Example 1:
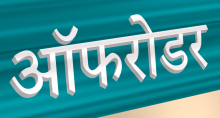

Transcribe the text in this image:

ऑफरोडर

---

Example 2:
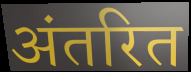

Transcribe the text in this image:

अंतरित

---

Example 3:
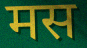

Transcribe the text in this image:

मस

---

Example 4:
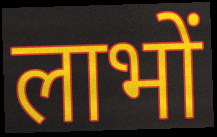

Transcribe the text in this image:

लाभों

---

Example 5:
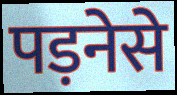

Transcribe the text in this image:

पड़नेसे